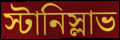
স্টানিস্লাভ